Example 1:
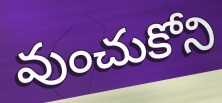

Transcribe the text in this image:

వుంచుకోని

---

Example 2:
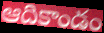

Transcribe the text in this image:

ఆదికాండం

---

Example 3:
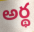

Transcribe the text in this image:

అర్థ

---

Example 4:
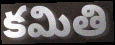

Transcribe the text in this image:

కమితి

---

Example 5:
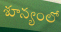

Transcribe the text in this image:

శూన్యంలో